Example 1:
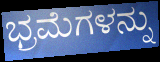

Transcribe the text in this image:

ಭ್ರಮೆಗಳನ್ನು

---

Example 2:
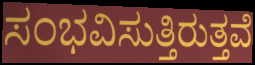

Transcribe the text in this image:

ಸಂಭವಿಸುತ್ತಿರುತ್ತವೆ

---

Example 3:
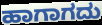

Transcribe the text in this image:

ಹಾಗಾಗದು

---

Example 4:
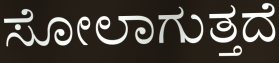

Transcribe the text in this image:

ಸೋಲಾಗುತ್ತದೆ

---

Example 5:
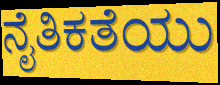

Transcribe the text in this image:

ನೈತಿಕತೆಯು